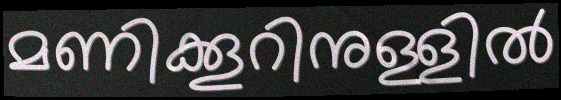
മണിക്കൂറിനുള്ളിൽ